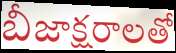
బీజాక్షరాలతో